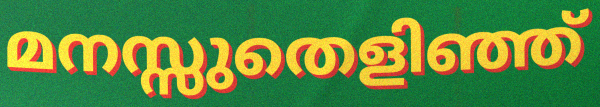
മനസ്സുതെളിഞ്ഞ്